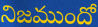
నిజముందో